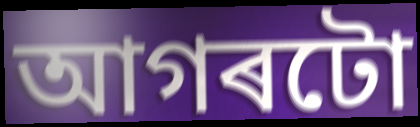
আগৰটো